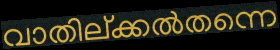
വാതില്ക്കൽതന്നെ